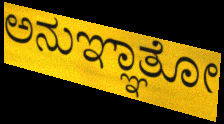
ಅನುಞ್ಞಾತೋ